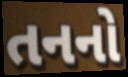
તનનો